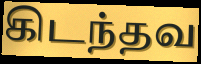
கிடந்தவ